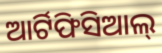
ଆର୍ଟିଫିସିଆଲ୍